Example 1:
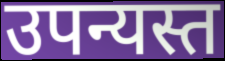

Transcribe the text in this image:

उपन्यस्त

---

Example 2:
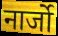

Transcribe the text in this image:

नार्जो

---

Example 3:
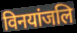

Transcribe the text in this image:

विनयांजलि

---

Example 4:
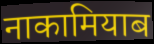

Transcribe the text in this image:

नाकामियाब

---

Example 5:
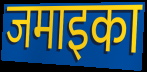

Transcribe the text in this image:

जमाइका